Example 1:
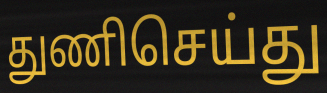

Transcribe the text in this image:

துணிசெய்து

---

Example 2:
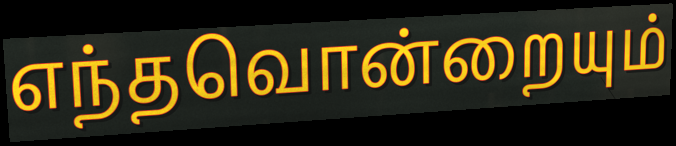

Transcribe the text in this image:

எந்தவொன்றையும்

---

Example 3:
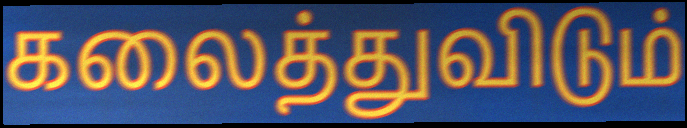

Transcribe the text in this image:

கலைத்துவிடும்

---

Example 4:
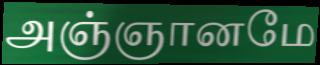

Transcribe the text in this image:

அஞ்ஞானமே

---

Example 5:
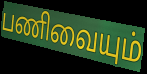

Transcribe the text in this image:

பணிவையும்